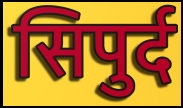
सिपुर्द